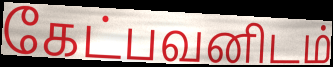
கேட்பவனிடம்